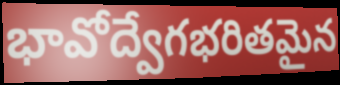
భావోద్వేగభరితమైన